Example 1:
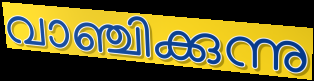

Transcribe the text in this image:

വാഞ്ചിക്കുന്നു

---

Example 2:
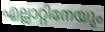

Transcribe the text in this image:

എല്ലാറ്റിനേയും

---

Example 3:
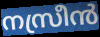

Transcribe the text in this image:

നസ്രീൻ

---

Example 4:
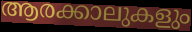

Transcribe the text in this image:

ആരക്കാലുകളും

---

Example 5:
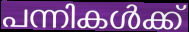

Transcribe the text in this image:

പന്നികൾക്ക്